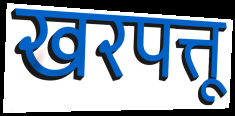
खरपत्तू